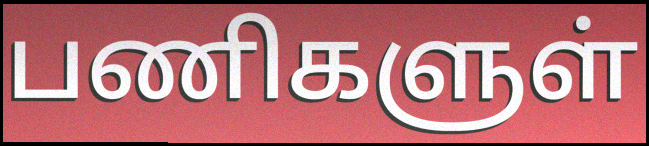
பணிகளுள்